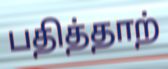
பதித்தாற்